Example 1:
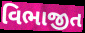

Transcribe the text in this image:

વિભાજીત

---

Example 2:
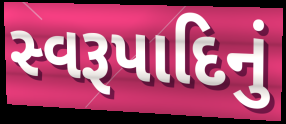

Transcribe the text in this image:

સ્વરૂપાદિનું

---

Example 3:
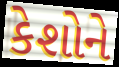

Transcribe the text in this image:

કેશોને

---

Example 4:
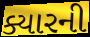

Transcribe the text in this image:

ક્યારની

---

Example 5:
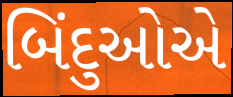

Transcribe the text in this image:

બિંદુઓએ